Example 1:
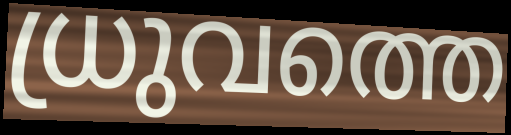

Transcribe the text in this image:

ധ്രുവത്തെ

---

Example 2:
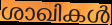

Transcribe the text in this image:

ശാഖികൾ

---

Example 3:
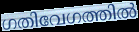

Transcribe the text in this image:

ഗതിവേഗത്തിൽ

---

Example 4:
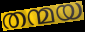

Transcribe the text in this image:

തന്മയ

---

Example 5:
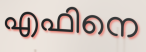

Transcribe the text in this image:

എഫിനെ